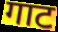
गाट